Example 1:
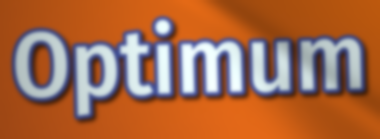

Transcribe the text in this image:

Optimum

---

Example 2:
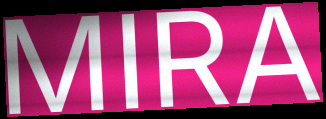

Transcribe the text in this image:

MIRA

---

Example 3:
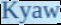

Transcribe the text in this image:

Kyaw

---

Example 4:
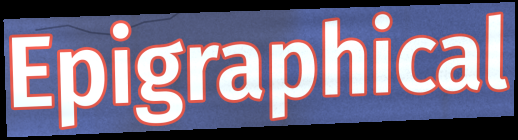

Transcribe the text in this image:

Epigraphical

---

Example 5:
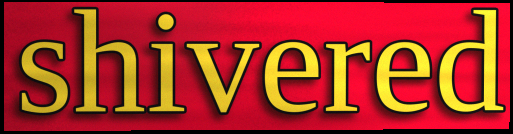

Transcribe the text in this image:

shivered